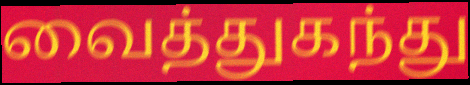
வைத்துகந்து